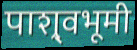
पाश्र्वभूमी